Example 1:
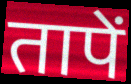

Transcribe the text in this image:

तापें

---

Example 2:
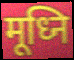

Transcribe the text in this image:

मूध्नि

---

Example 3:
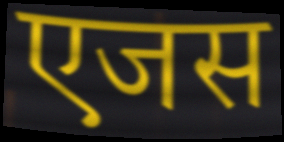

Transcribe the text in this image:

एजस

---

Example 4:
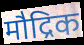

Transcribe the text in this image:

मौद्रिक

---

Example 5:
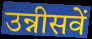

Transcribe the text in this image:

उन्नीसवें